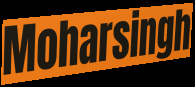
Moharsingh